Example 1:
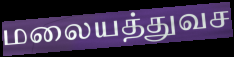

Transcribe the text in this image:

மலையத்துவச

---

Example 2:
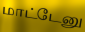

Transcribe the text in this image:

மாட்டேனு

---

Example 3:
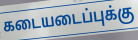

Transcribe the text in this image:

கடையடைப்புக்கு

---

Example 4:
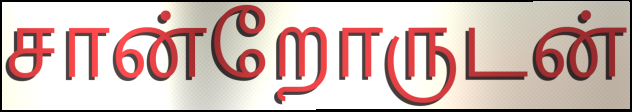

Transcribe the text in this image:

சான்றோருடன்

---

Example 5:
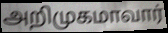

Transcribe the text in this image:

அறிமுகமாவார்